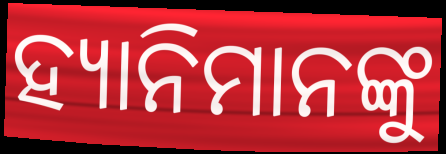
ହ୍ୟାନିମାନଙ୍କୁ